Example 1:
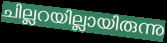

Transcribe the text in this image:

ചില്ലറയില്ലായിരുന്നു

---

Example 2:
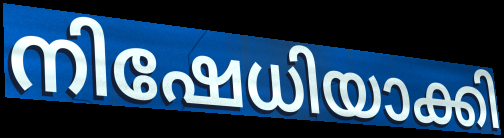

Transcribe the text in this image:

നിഷേധിയാക്കി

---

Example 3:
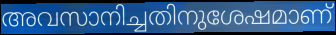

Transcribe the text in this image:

അവസാനിച്ചതിനുശേഷമാണ്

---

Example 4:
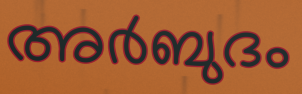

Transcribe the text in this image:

അർബുദം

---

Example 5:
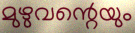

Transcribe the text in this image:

മുഴുവന്റെയും